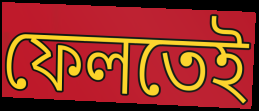
ফেলতেই